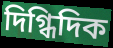
দিগ্ধিদিক